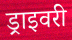
ड्राइवरी